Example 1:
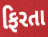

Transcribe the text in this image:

ફિરતા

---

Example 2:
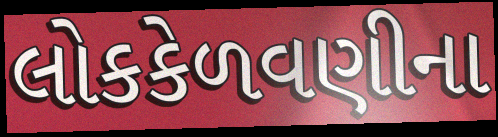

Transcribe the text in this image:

લોકકેળવણીના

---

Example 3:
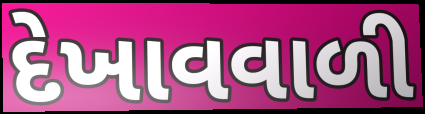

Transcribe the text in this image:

દેખાવવાળી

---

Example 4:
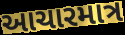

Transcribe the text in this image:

આચારમાત્ર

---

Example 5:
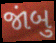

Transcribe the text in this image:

જાંબુ